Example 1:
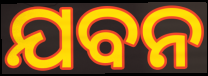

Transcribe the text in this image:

ଯବନ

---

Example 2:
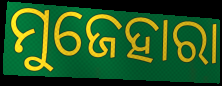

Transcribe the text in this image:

ମୁଜେହାରା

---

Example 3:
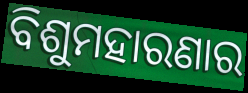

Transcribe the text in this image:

ବିଶୁମହାରଣାର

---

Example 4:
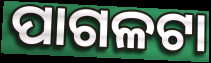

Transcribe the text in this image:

ପାଗଳଟା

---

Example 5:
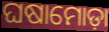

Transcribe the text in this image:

ଘଷାମୋଡ଼ା